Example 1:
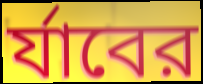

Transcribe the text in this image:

র্যাবের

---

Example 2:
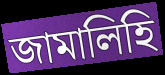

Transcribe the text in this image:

জামালিহি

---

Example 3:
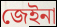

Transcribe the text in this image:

জেইনা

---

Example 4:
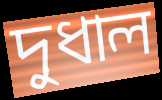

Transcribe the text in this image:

দুধাল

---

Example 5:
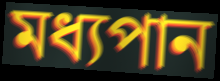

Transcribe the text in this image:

মধ্যপান